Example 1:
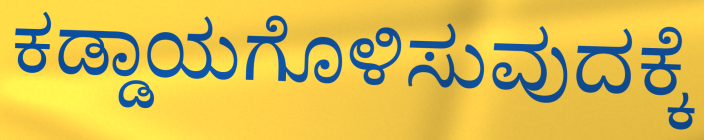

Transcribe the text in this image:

ಕಡ್ಡಾಯಗೊಳಿಸುವುದಕ್ಕೆ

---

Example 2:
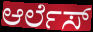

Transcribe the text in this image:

ಆರ್ಲೆಸ್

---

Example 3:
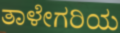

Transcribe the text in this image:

ತಾಳೇಗರಿಯ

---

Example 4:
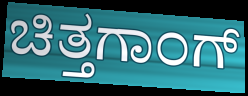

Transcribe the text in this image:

ಚಿತ್ತಗಾಂಗ್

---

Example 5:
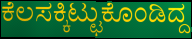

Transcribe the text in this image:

ಕೆಲಸಕ್ಕಿಟ್ಟುಕೊಂಡಿದ್ದ